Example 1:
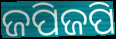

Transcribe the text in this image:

ଜପିଜପି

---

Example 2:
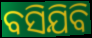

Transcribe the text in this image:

ବସିଯିବି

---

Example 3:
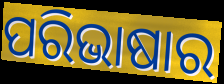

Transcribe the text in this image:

ପରିଭାଷାର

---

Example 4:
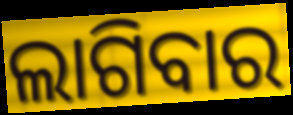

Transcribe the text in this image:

ଲାଗିବାର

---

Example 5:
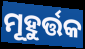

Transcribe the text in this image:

ମୂହୁର୍ତ୍ତକ